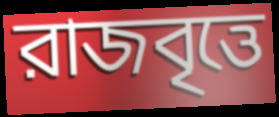
রাজবৃত্তে